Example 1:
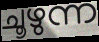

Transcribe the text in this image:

ചൂഴുന്ന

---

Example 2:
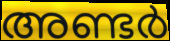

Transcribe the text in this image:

അണ്ടർ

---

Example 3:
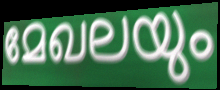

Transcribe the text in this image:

മേഖലയും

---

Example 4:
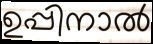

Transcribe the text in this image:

ഉപ്പിനാൽ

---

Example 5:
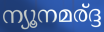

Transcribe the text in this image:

ന്യൂനമര്ദ്ദ